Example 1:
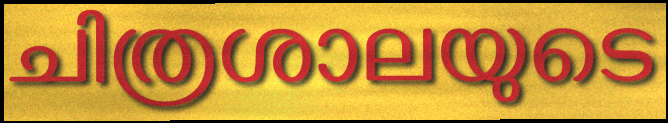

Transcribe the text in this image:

ചിത്രശാലയുടെ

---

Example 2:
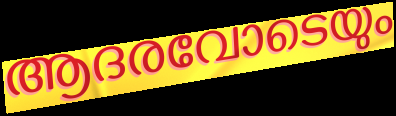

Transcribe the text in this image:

ആദരവോടെയും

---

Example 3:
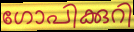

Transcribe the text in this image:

ഗോപിക്കുറി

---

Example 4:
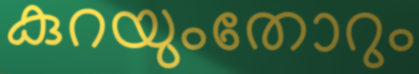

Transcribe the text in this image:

കുറയുംതോറും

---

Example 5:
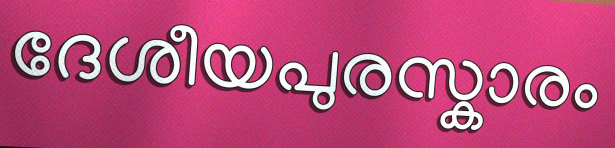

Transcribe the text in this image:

ദേശീയപുരസ്കാരം